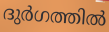
ദുർഗത്തിൽ